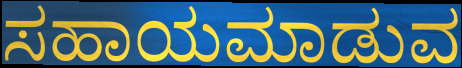
ಸಹಾಯಮಾಡುವ